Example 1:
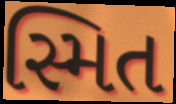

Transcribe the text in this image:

સ્મિત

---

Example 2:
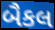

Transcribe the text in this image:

બૈકલ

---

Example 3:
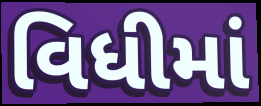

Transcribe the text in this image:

વિધીમાં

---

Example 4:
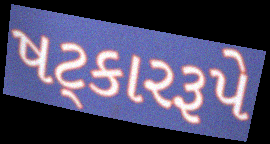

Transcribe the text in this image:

ષટ્કારરૂપે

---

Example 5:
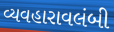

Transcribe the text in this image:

વ્યવહારાવલંબી